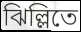
ঝিল্লিতে